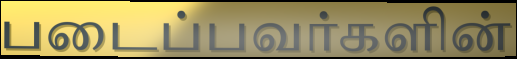
படைப்பவர்களின்